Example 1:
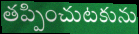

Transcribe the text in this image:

తప్పించుటకును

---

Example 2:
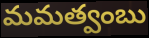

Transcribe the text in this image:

మమత్వంబు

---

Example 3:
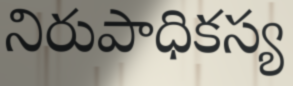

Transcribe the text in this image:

నిరుపాధికస్య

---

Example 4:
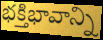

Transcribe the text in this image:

భక్తిభావాన్ని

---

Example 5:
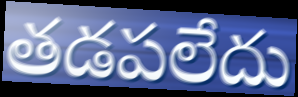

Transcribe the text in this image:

తడపలేదు